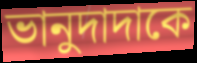
ভানুদাদাকে